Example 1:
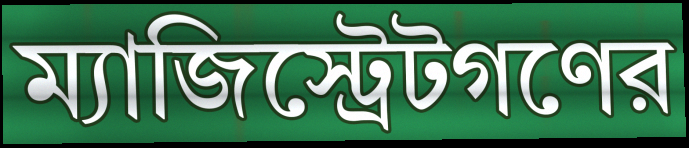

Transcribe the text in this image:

ম্যাজিস্ট্রেটগণের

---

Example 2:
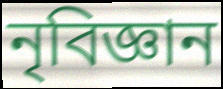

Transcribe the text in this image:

নৃবিজ্ঞান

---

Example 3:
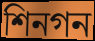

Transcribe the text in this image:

শিনগন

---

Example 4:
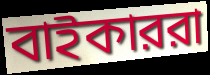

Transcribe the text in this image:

বাইকাররা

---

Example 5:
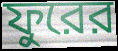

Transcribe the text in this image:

ফুরের